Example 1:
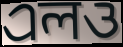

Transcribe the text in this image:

এলও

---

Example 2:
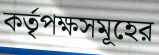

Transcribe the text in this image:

কর্তৃপক্ষসমূহের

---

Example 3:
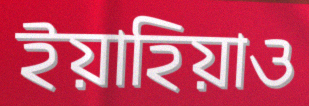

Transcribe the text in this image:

ইয়াহিয়াও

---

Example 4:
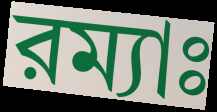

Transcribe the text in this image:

রম্যাঃ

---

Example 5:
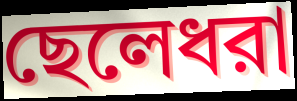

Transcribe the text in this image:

ছেলেধরা